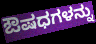
ಔಷಧಗಳನ್ನು